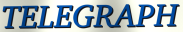
TELEGRAPH